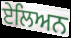
ਏਲਿਅਨ